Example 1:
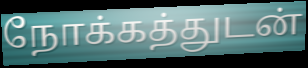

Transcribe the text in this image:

நோக்கத்துடன்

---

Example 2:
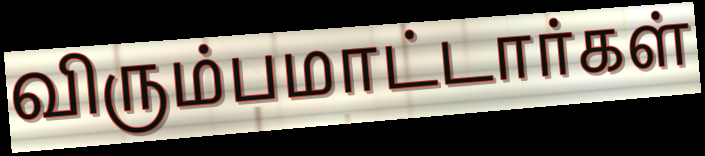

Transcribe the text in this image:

விரும்பமாட்டார்கள்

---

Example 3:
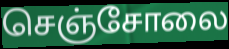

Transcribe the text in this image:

செஞ்சோலை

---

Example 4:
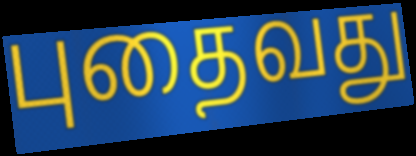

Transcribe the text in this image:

புதைவது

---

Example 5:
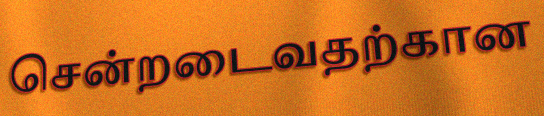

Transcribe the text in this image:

சென்றடைவதற்கான